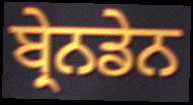
ਬ੍ਰੇਨਡੇਨ